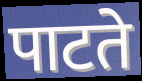
पाटते